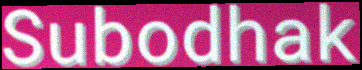
Subodhak